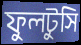
ফুলটুসি